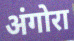
अंगोरा